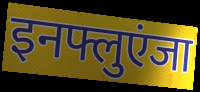
इनफ्लुएंजा